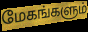
மேகங்களும்